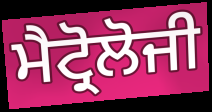
ਮੈਟ੍ਰੋਲੋਜੀ